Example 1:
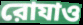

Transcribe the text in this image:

রোযাও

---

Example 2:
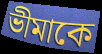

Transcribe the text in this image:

ভীমাকে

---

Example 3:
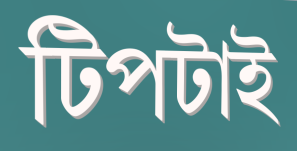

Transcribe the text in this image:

টিপটাই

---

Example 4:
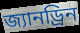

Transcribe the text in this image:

জ্যানড্রিন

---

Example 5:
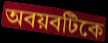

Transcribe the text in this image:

অবয়বটিকে